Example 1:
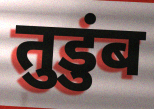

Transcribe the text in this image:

तुडुंब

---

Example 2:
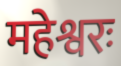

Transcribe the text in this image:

महेश्वरः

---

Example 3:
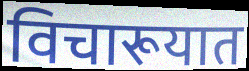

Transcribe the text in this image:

विचारूयात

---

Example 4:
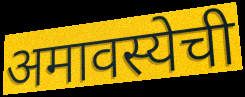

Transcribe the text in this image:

अमावस्येची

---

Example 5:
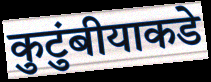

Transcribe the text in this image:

कुटुंबीयाकडे